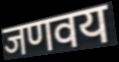
जणवय